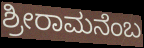
ಶ್ರೀರಾಮನೆಂಬ